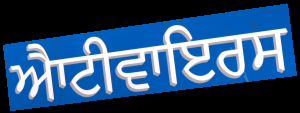
ਐਾਟੀਵਾਇਰਸ